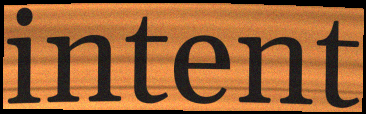
intent